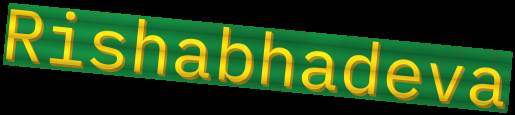
Rishabhadeva